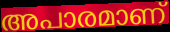
അപാരമാണ്